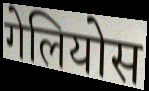
गेलियोस